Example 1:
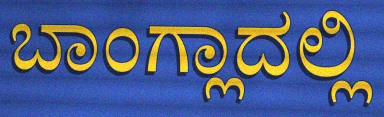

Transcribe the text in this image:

ಬಾಂಗ್ಲಾದಲ್ಲಿ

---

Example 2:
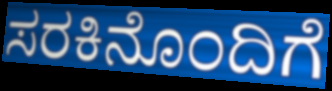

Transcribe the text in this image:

ಸರಕಿನೊಂದಿಗೆ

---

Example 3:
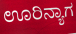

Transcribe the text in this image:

ಊರಿನ್ಯಾಗ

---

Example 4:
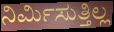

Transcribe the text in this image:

ನಿರ್ಮಿಸುತ್ತಿಲ್ಲ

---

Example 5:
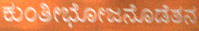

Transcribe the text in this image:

ಕುಂತೀಭೋಜನೊಡೆತನ